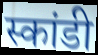
स्कांडी